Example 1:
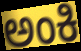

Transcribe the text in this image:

ಅಂಕಿ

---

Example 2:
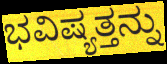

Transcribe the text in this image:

ಭವಿಷ್ಯತ್ತನ್ನು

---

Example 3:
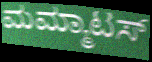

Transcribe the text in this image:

ಮಮ್ಮಾಟಸ್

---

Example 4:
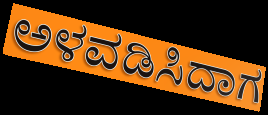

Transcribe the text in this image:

ಅಳವಡಿಸಿದಾಗ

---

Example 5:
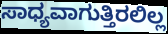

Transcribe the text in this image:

ಸಾಧ್ಯವಾಗುತ್ತಿರಲಿಲ್ಲ